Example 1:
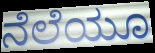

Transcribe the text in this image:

ನೆಲೆಯೂ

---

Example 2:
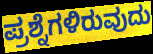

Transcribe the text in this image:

ಪ್ರಶ್ನೆಗಳಿರುವುದು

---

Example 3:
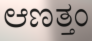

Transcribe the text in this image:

ಆಣತ್ತಂ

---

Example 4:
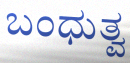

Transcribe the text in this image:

ಬಂಧುತ್ವ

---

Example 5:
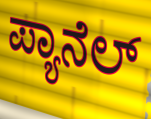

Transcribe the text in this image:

ಪ್ಯಾನೆಲ್